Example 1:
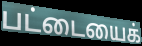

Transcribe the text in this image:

பட்டையைக்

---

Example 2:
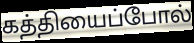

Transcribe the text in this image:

கத்தியைப்போல்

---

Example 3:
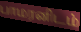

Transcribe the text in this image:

பாமரனிடம்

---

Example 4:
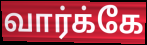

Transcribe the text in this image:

வார்க்கே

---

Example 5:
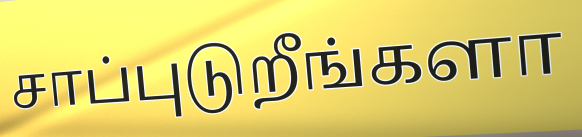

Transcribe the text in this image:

சாப்புடுறீங்களா